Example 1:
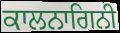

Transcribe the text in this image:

ਕਾਲਨਾਗਿਨੀ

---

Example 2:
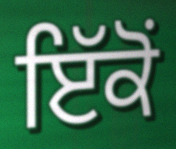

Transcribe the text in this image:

ਇੱਕੋਂ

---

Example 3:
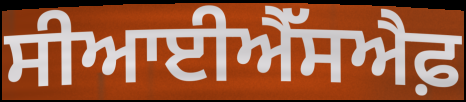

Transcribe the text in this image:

ਸੀਆਈਐੱਸਐਫ਼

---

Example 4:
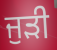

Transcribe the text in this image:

ਜੁੜੀ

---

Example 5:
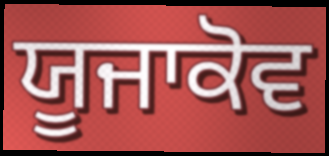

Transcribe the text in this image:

ਯੂਜਾਕੋਵ